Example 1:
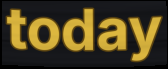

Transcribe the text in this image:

today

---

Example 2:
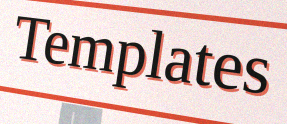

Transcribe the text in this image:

Templates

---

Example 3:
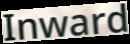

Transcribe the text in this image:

Inward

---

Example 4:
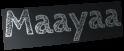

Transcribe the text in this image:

Maayaa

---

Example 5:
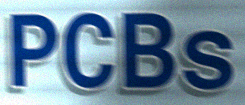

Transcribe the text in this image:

PCBs